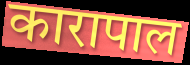
कारापाल